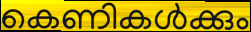
കെണികൾക്കും